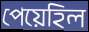
পেয়েহিল